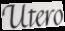
Utero